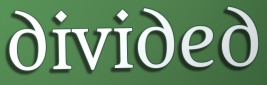
divided